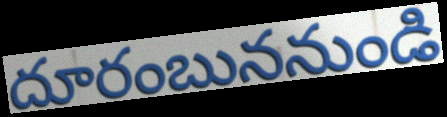
దూరంబుననుండి